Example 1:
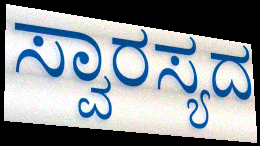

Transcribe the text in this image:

ಸ್ವಾರಸ್ಯದ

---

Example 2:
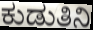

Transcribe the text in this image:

ಕುಡುತಿನಿ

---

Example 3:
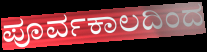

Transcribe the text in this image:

ಪೂರ್ವಕಾಲದಿಂದ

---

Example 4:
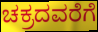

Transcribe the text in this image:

ಚಕ್ರದವರೆಗೆ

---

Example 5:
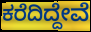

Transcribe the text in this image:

ಕರೆದಿದ್ದೇವೆ